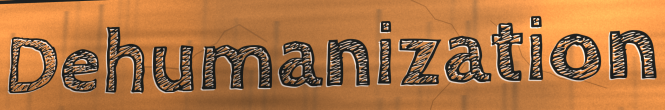
Dehumanization